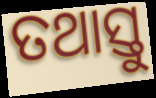
ତଥାସ୍ତୁ